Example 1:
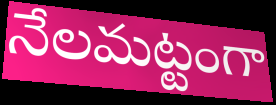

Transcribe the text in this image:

నేలమట్టంగా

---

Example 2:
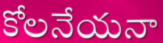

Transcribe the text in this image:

కోలనేయనా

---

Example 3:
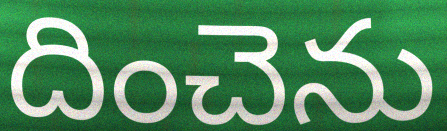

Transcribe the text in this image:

దించెను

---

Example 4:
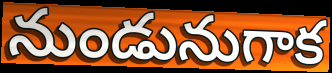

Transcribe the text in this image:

నుండునుగాక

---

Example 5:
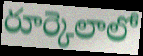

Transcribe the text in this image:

రూర్కెలాలో